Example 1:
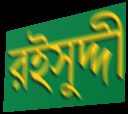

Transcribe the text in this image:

রইসুদ্দী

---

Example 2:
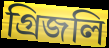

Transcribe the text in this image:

গ্রিজলি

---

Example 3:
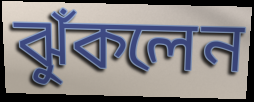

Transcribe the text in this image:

ঝুঁকলেন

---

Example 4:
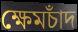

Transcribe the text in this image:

ক্ষেমচাঁদ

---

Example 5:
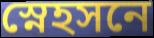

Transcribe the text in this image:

স্নেহসনে